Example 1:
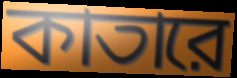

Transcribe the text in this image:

কাতারে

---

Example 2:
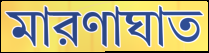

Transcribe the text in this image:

মারণাঘাত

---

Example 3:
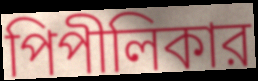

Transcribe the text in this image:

পিপীলিকার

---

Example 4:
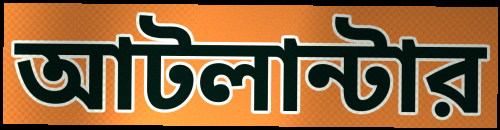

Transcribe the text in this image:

আটলান্টার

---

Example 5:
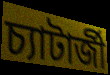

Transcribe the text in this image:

চ্যাটার্জী